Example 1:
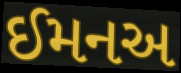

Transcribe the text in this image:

ઈમનઅ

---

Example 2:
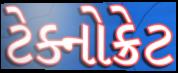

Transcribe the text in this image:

ટેક્નોક્રેટ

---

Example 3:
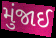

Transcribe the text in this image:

મુંજાઈ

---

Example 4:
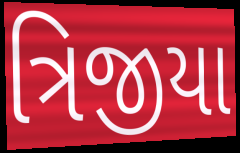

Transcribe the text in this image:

ત્રિજીયા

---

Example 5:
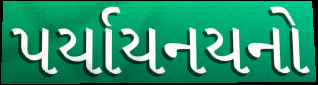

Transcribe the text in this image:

પર્યાયનયનો